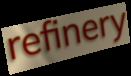
refinery